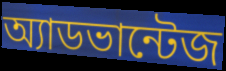
অ্যাডভান্টেজ